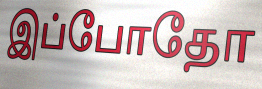
இப்போதோ